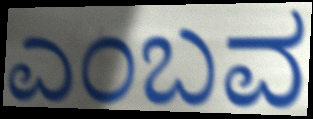
ಎಂಬವ